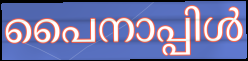
പൈനാപ്പിൾ